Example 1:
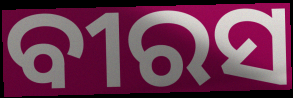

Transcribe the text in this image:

ବୀରସ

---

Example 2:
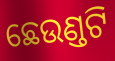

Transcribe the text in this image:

ଛେଉଣ୍ଡଟି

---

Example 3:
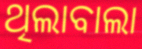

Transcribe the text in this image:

ଥିଲାବାଲା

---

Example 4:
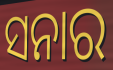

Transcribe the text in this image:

ସନାର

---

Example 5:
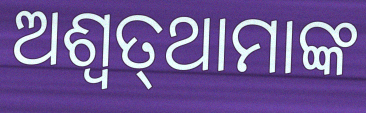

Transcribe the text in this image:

ଅଶ୍ୱତ୍‌ଥାମାଙ୍କ